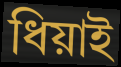
ধিয়াই